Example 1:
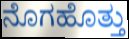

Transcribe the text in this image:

ನೊಗಹೊತ್ತು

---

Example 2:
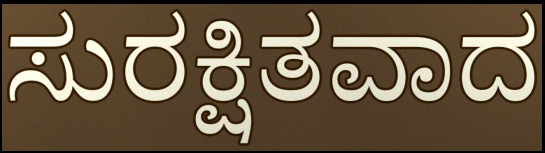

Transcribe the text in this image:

ಸುರಕ್ಷಿತವಾದ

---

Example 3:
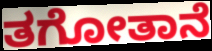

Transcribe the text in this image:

ತಗೋತಾನೆ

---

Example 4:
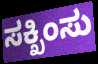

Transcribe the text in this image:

ಸಕ್ಖಿಂಸು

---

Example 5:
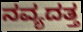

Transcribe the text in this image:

ನವ್ಯದತ್ತ